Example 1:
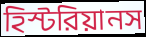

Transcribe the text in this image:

হিস্টরিয়ানস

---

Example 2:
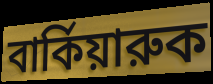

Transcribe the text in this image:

বার্কিয়ারুক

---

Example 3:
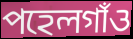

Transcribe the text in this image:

পহেলগাঁও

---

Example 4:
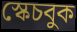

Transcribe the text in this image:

স্কেচবুক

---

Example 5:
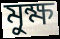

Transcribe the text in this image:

মুক্ষ